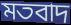
মতবাদ